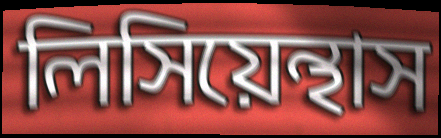
লিসিয়েন্থাস